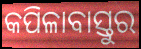
କପିଳାବାସ୍ତୁର